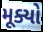
મૂક્યો